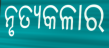
ନୃତ୍ୟକଳାର